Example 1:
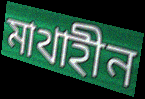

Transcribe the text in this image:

মাথাহীন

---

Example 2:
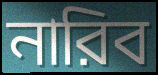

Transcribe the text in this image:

নারিব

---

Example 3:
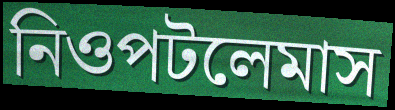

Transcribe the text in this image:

নিওপটলেমাস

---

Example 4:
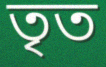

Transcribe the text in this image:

তৃত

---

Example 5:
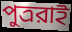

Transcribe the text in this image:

পুত্ররাই